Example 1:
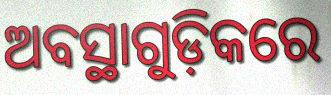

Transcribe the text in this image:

ଅବସ୍ଥାଗୁଡ଼ିକରେ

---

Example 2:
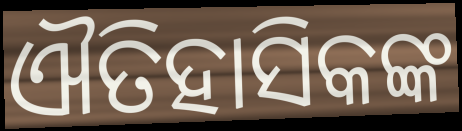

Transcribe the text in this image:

ଐତିହାସିକଙ୍କ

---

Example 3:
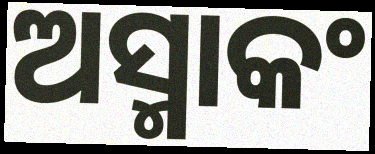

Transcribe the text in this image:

ଅସ୍ମାକଂ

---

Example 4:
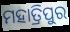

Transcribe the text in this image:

ମହାତ୍ରିପୁର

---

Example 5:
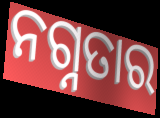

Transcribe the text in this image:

ନଗ୍ନତାର